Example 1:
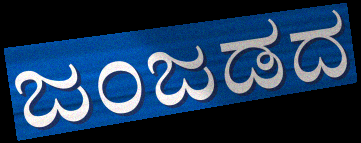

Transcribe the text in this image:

ಜಂಜಡದ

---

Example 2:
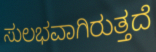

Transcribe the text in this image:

ಸುಲಭವಾಗಿರುತ್ತದೆ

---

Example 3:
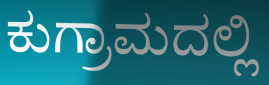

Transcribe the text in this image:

ಕುಗ್ರಾಮದಲ್ಲಿ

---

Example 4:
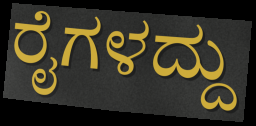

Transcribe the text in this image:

ರೈಗಳದ್ದು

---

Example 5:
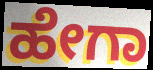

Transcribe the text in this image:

ಹೇಗಾ